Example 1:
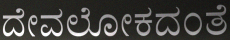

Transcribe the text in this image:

ದೇವಲೋಕದಂತೆ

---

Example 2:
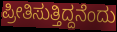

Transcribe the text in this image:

ಪ್ರೀತಿಸುತ್ತಿದ್ದನೆಂದು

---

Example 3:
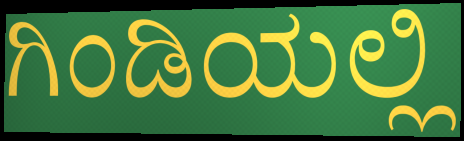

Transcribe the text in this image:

ಗಿಂಡಿಯಲ್ಲಿ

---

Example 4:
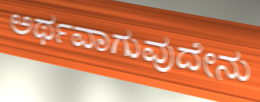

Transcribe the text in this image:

ಅರ್ಥವಾಗುವುದೇನು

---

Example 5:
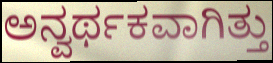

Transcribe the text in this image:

ಅನ್ವರ್ಥಕವಾಗಿತ್ತು